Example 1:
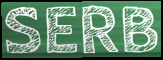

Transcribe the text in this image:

SERB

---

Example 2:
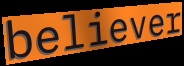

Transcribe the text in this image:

believer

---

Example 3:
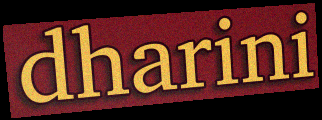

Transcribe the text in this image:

dharini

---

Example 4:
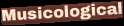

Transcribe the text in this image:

Musicological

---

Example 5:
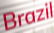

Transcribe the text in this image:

Brazil